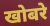
खोबरे